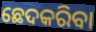
ଛେଦକରିବା